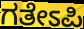
ಗತೇಽಪಿ